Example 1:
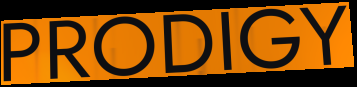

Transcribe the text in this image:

PRODIGY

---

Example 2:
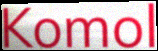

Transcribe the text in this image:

Komol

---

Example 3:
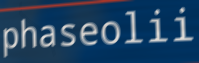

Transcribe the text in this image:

phaseolii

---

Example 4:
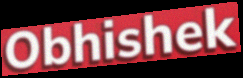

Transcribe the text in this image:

Obhishek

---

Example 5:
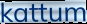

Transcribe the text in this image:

kattum